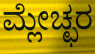
ಮ್ಲೇಚ್ಛರ